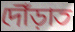
দৌঁড়াত